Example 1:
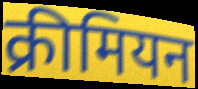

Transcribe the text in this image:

क्रीमियन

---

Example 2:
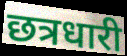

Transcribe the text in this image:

छत्रधारी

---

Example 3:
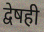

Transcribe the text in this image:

द्वेषही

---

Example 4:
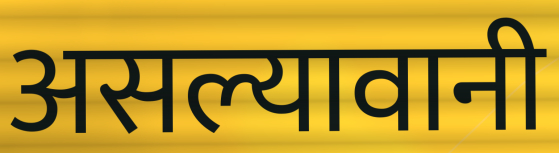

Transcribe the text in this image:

असल्यावानी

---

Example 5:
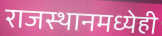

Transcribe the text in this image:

राजस्थानमध्येही